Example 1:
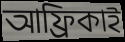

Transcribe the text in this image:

আফ্ৰিকাই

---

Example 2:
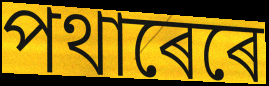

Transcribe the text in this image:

পথাৰেৰে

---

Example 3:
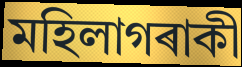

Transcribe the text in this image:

মহিলাগৰাকী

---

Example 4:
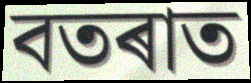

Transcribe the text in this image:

বতৰাত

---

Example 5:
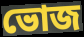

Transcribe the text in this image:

ভোজ